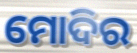
ମୋଦିର